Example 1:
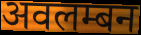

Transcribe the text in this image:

अवलम्बन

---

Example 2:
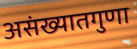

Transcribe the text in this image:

असंख्यातगुणा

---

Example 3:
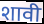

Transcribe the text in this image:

शावी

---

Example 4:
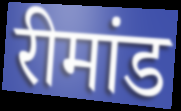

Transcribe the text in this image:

रीमांड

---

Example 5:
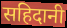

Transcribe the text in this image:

सहिदानी